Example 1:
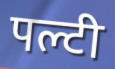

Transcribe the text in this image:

पल्टी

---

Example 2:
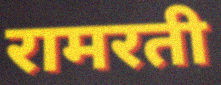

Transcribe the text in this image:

रामरती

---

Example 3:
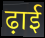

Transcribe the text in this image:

ढ़ाई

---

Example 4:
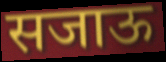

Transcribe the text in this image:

सजाऊ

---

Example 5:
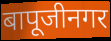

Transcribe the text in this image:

बापूजीनगर